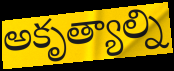
అకృత్యాల్ని